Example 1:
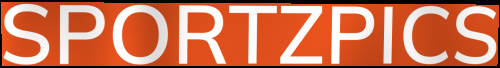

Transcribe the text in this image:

SPORTZPICS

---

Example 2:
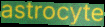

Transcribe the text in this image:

astrocyte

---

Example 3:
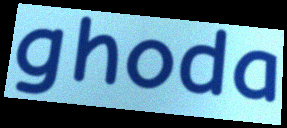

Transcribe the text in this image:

ghoda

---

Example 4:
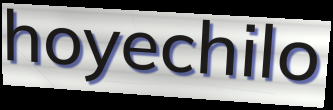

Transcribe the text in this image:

hoyechilo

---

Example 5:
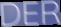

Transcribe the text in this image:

DER